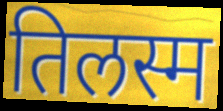
तिलस्म